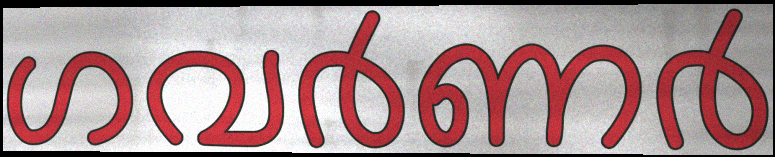
ഗവർണർ